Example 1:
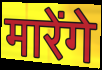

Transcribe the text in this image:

मारेंगे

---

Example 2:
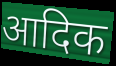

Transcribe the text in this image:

आदिक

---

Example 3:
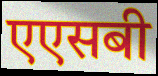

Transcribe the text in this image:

एएसबी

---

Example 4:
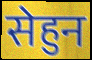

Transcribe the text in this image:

सेहुन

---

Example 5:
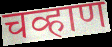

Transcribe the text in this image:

चव्हाण